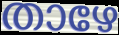
താഴേ